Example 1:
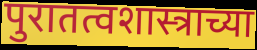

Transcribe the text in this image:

पुरातत्वशास्त्राच्या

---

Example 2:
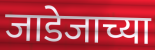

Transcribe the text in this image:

जाडेजाच्या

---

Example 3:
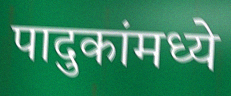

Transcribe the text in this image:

पादुकांमध्ये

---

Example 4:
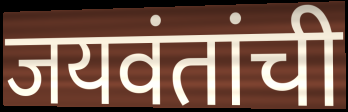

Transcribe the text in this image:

जयवंतांची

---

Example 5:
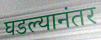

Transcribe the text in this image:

घडल्यानंतर